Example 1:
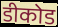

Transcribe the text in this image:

डीकोड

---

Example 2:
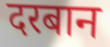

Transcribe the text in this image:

दरबान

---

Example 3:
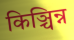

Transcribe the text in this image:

किञ्चिन्न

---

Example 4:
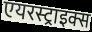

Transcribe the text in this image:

एयरस्ट्राइक्स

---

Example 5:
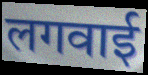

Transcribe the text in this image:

लगवाई